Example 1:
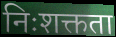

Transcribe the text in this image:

निःशक्तता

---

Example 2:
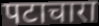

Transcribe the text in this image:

पटाचारा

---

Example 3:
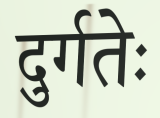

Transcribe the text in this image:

दुर्गतेः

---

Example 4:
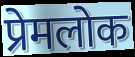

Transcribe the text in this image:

प्रेमलोक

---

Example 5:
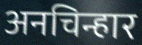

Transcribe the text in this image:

अनचिन्हार